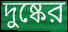
দুষ্কের